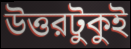
উত্তরটুকুই